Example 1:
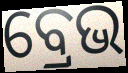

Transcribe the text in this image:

ବ୍ରେଭ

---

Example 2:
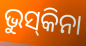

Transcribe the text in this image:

ଭୁସ୍‌କିନା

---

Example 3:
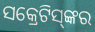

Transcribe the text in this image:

ସକ୍ରେଟିସ୍‌ଙ୍କର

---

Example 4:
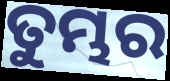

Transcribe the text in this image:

ତୁମ୍ଭର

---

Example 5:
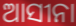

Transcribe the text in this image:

ଆସୀନା